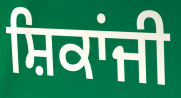
ਸ਼ਿਕਾਂਜੀ